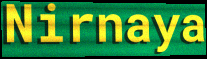
Nirnaya